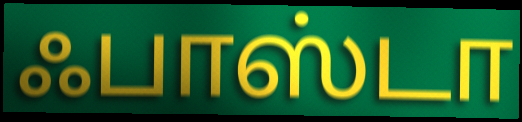
ஃபாஸ்டா